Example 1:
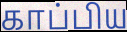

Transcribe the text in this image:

காப்பிய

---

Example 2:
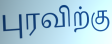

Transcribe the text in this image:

புரவிற்கு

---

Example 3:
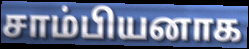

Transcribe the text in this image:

சாம்பியனாக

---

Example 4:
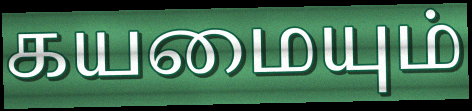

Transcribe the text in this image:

கயமையும்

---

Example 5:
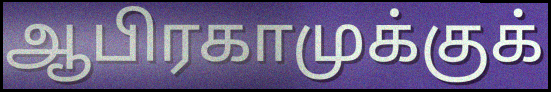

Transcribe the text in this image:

ஆபிரகாமுக்குக்